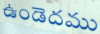
ఉండెదము